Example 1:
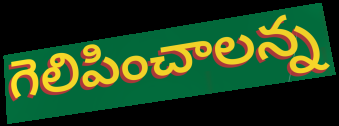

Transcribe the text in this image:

గెలిపించాలన్న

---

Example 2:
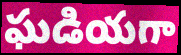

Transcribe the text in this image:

ఘడియగా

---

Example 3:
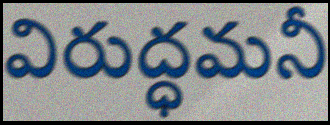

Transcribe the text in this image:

విరుద్ధమనీ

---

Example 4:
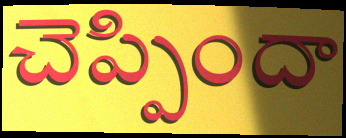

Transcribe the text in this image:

చెప్పిందా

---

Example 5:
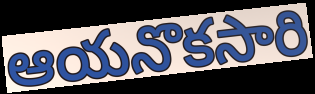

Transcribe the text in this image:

ఆయనొకసారి